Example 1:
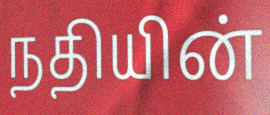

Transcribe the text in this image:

நதியின்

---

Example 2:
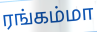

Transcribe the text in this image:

ரங்கம்மா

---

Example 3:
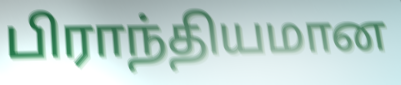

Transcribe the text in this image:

பிராந்தியமான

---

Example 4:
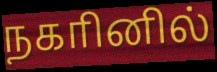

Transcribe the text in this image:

நகரினில்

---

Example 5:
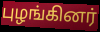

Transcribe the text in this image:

புழங்கினர்